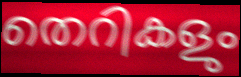
തെറികളും